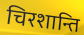
चिरशान्ति